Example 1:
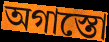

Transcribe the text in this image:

অগাস্তো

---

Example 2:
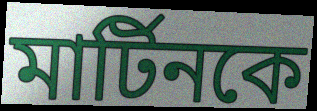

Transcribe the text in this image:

মার্টিনকে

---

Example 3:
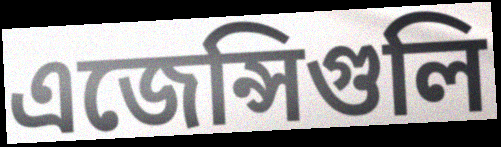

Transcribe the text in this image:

এজেন্সিগুলি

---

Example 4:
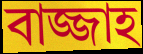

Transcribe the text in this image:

বাজ্জাহ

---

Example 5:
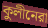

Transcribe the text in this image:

কুলীনেরা